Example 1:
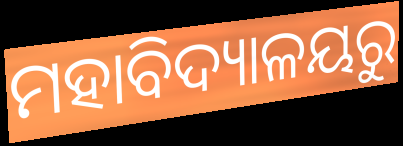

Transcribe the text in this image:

ମହାବିଦ୍ୟାଳୟରୁ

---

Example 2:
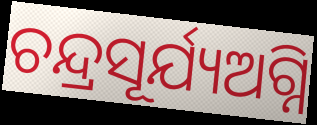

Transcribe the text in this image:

ଚନ୍ଦ୍ରସୂର୍ଯ୍ୟଅଗ୍ନି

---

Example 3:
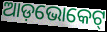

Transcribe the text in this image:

ଆଡ଼ଭୋକେଟ୍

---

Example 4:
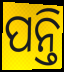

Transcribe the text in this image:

ପନ୍ତି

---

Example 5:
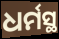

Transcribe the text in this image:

ଧର୍ମସ୍ଥ